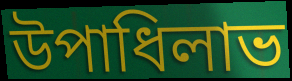
উপাধিলাভ